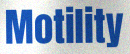
Motility